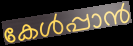
കേൾപ്പാൻ